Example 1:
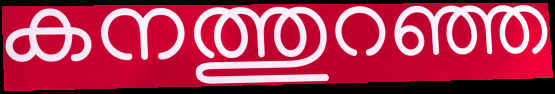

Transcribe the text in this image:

കനത്തുറഞ്ഞ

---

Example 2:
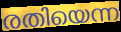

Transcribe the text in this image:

രതിയെന്ന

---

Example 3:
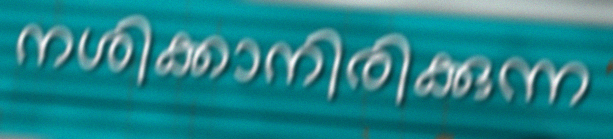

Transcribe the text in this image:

നശിക്കാനിരിക്കുന്ന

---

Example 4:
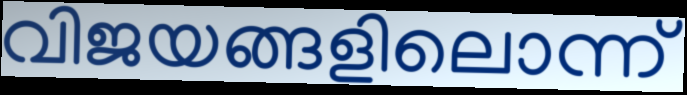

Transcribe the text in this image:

വിജയങ്ങളിലൊന്ന്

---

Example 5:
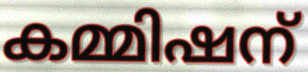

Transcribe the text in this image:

കമ്മിഷന്